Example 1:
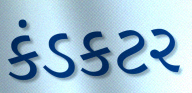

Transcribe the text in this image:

કંડકટર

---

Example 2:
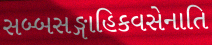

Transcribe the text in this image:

સબ્બસઙ્ગાહિકવસેનાતિ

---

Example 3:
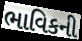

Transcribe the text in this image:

ભાવિકની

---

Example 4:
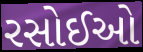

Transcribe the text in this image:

રસોઈઓ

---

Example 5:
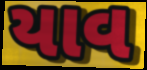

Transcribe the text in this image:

યાવ